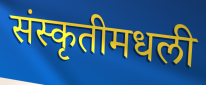
संस्कृतीमधली